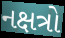
નક્ષત્રો